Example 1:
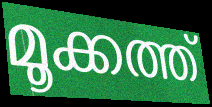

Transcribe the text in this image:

മൂക്കത്ത്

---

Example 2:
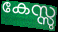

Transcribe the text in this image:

കേസ്സു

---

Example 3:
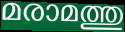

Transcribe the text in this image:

മരാമത്തു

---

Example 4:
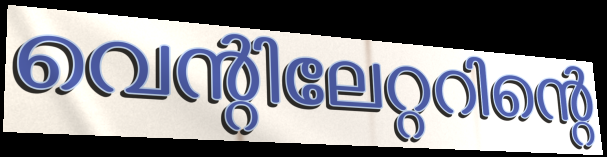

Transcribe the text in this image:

വെന്റിലേറ്ററിന്റെ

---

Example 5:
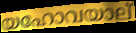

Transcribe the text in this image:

യഹോവയാല്